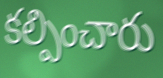
కల్పించారు